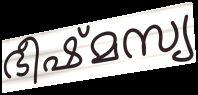
ഭീഷ്മസ്യ